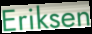
Eriksen